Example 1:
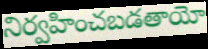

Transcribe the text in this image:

నిర్వహించబడతాయో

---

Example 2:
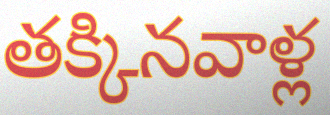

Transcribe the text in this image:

తక్కినవాళ్ల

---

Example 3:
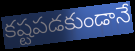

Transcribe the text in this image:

కష్టపడకుండానే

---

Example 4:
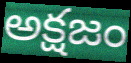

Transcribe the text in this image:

అక్షజం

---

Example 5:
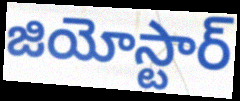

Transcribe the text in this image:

జియోస్టార్